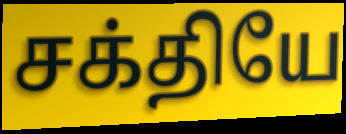
சக்தியே